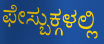
ಫೇಸ್ಬುಕ್ಗಳಲ್ಲಿ